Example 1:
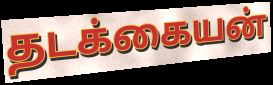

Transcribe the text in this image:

தடக்கையன்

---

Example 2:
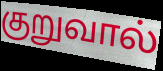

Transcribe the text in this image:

குறுவால்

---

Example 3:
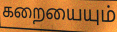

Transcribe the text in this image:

கறையையும்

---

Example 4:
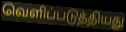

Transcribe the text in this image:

வெளிப்படுத்தியது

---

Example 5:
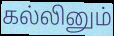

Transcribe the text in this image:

கல்லினும்